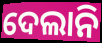
ଦେଲାନି